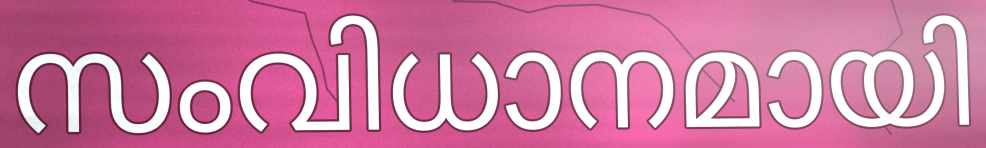
സംവിധാനമായി